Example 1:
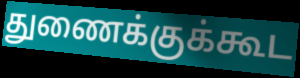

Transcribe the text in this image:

துணைக்குக்கூட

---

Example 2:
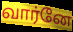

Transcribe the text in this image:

வார்னே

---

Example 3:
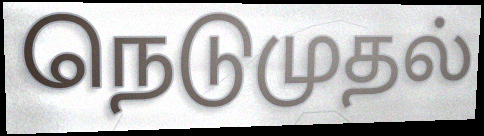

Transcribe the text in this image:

நெடுமுதல்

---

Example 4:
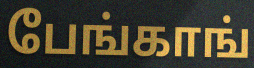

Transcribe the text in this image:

பேங்காங்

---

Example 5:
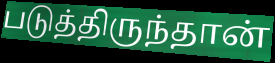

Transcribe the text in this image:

படுத்திருந்தான்